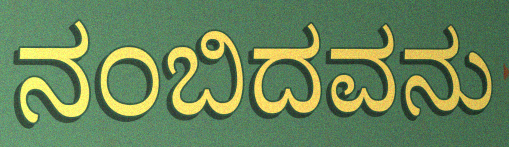
ನಂಬಿದವನು